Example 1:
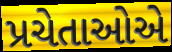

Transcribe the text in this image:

પ્રચેતાઓએ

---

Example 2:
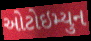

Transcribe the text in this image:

ઓટોઇમ્યુન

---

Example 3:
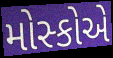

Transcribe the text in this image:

મોસ્કોએ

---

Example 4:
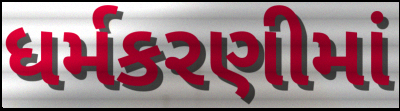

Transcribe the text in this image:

ધર્મકરણીમાં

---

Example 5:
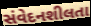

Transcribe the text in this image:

સંવેદનશીલતા